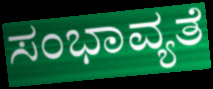
ಸಂಭಾವ್ಯತೆ